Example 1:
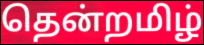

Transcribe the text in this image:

தென்றமிழ்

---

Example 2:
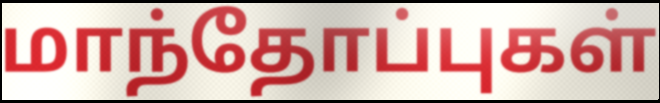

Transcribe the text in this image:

மாந்தோப்புகள்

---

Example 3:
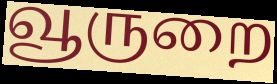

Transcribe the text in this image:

வூருறை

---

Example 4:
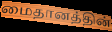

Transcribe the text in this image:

மைதானத்தின்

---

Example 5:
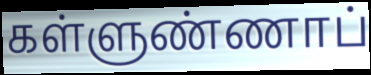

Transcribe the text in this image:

கள்ளுண்ணாப்